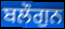
ਬਲੌਗੁਨ